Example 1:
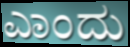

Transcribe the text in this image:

ಎಾಂದು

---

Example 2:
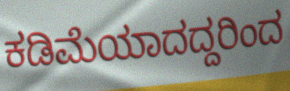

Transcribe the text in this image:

ಕಡಿಮೆಯಾದದ್ದರಿಂದ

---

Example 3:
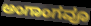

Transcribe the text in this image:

ಅಂಗಾಂಗವೂ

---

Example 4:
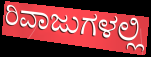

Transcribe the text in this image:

ರಿವಾಜುಗಳಲ್ಲಿ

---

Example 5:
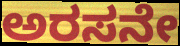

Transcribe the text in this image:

ಅರಸನೇ